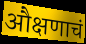
औक्षणाचं